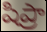
షిప్రా